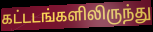
கட்டடங்களிலிருந்து